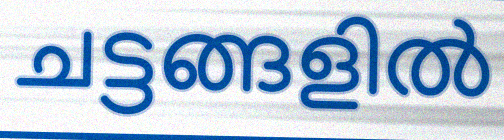
ചട്ടങ്ങളിൽ